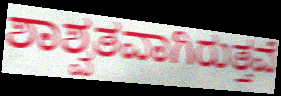
ಶಾಶ್ವತವಾಗಿರುತ್ತವೆ